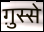
ग़ुस्से